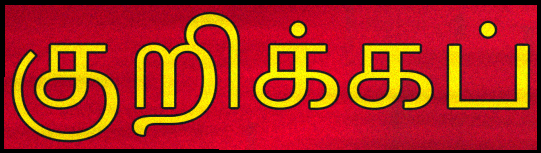
குறிக்கப்